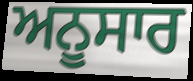
ਅਨੂਸਾਰ